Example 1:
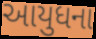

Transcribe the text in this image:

આયુધના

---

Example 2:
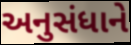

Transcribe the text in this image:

અનુસંધાને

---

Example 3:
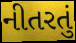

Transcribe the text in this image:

નીતરતું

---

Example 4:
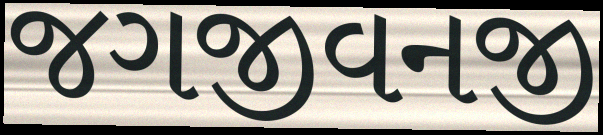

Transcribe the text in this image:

જગજીવનજી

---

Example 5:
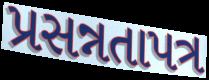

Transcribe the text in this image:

પ્રસન્નતાપત્ર